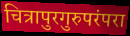
चित्रापुरगुरुपरंपरा